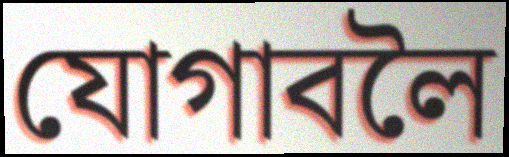
যোগাবলৈ